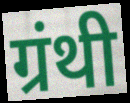
ग्रंथी